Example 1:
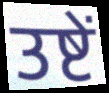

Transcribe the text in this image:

उष्टें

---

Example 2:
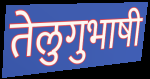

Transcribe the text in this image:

तेलुगुभाषी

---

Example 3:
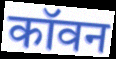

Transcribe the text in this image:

कॉवन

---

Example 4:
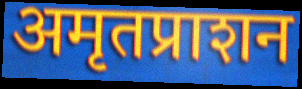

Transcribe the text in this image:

अमृतप्राशन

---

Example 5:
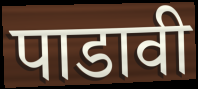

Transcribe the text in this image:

पाडावी